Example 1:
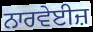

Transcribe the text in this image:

ਨਾਰਵੇਈਜ਼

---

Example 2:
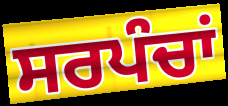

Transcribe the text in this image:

ਸਰਪੰਚਾਂ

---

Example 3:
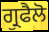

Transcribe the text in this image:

ਗ੍ਰੁਫੈਲੋ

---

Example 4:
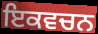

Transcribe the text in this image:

ਇਕਵਚਨ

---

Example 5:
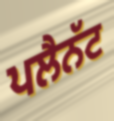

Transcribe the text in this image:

ਪਲੈਨੱਟ